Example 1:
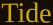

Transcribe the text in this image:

Tide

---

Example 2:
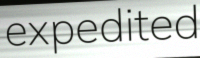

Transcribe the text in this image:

expedited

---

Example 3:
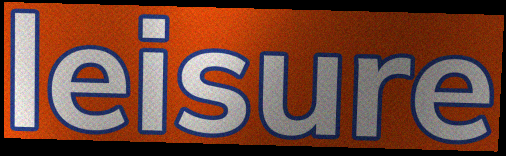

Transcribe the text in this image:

leisure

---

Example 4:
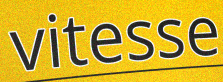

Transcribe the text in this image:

vitesse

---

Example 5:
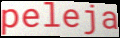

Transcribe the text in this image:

peleja